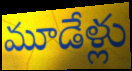
మూడేళ్లు